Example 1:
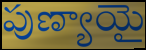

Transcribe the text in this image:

పుణ్యాయై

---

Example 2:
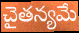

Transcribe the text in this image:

చైతన్యమే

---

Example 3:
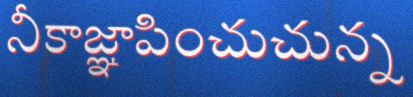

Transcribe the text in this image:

నీకాజ్ఞాపించుచున్న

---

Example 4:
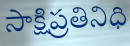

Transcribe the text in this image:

సాక్షిప్రతినిధి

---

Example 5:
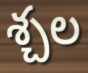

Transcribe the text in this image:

శ్చల